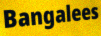
Bangalees